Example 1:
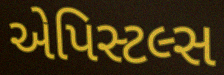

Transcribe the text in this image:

એપિસ્ટલ્સ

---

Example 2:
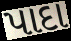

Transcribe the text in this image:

પાદા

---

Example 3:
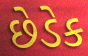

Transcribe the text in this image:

છેડેક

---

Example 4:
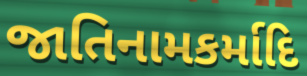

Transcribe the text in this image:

જાતિનામકર્માદિ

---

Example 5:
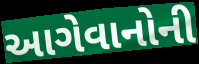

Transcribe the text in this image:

આગેવાનોની